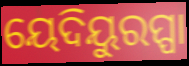
ୟେଦିୟୁରପ୍ପା